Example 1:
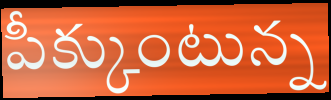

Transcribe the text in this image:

పీక్కుంటున్న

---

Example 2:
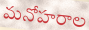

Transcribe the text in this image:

మనోహరాల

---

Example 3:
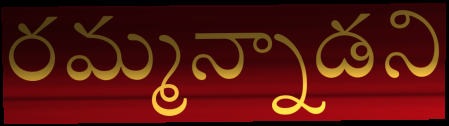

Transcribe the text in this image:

రమ్మన్నాడని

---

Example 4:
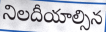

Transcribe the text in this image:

నిలదీయాల్సిన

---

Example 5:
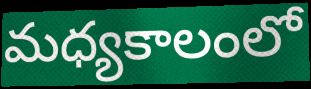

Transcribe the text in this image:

మధ్యకాలంలో